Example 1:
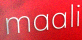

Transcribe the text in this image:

maali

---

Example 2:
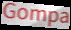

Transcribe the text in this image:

Gompa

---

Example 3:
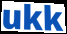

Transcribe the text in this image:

ukk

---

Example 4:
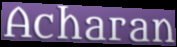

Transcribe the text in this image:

Acharan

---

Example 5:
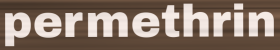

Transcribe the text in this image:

permethrin